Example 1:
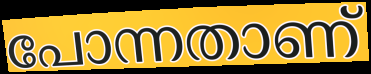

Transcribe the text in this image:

പോന്നതാണ്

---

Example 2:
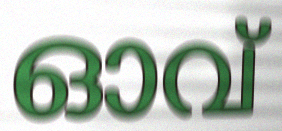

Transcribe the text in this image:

ഓവ്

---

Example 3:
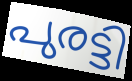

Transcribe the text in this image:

പുരട്ടി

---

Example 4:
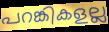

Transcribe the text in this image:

പറങ്കികളല്ല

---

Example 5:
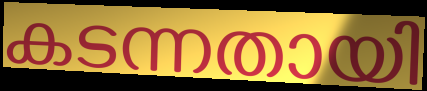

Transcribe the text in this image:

കടന്നതായി